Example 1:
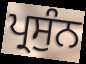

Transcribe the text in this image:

ਪ੍ਰਸੁੰਨ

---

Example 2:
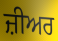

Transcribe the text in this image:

ਜ਼ੀਅਰ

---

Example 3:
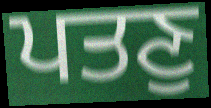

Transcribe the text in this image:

ਪਤਣੁ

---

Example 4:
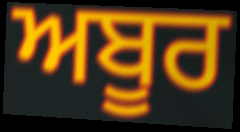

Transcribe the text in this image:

ਅਬੂਰ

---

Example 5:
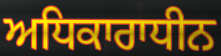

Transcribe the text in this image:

ਅਧਿਕਾਰਾਧੀਨ